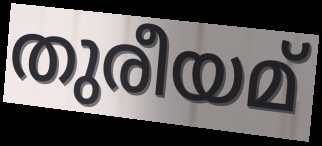
തുരീയമ്